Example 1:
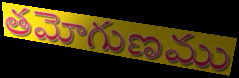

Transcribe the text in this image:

తమోగుణము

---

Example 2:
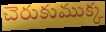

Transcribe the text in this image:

చెరుకుముక్క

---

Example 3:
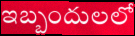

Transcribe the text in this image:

ఇబ్బందులలో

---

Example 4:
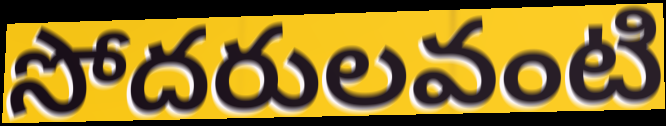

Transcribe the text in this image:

సోదరులవంటి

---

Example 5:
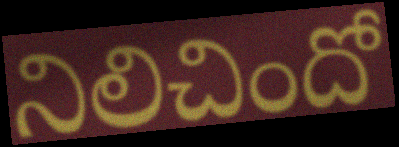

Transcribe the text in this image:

నిలిచిందో